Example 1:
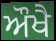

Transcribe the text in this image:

ਔਖੈ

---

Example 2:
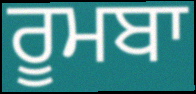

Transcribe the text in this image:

ਰੂਮਬਾ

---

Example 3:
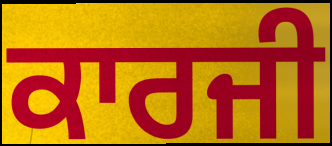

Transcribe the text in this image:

ਕਾਰਜੀ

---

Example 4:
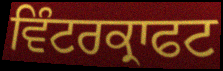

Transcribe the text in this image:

ਵਿੰਟਰਕ੍ਰਾਫਟ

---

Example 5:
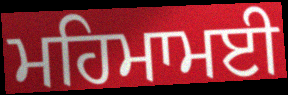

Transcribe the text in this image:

ਮਹਿਮਾਮਈ